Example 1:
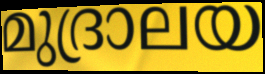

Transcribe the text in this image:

മുദ്രാലയ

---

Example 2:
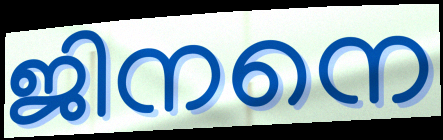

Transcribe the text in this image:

ജിനനെ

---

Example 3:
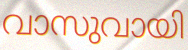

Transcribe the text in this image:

വാസുവായി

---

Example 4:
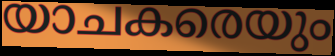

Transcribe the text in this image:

യാചകരെയും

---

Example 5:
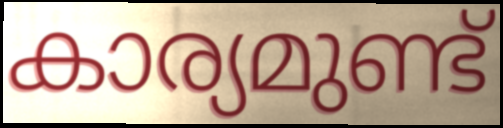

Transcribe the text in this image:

കാര്യമുണ്ട്